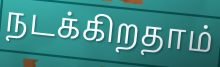
நடக்கிறதாம்